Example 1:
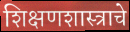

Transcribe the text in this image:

शिक्षणशास्त्राचे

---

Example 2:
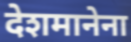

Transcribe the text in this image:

देशमानेना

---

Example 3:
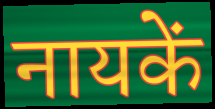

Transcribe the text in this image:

नायकें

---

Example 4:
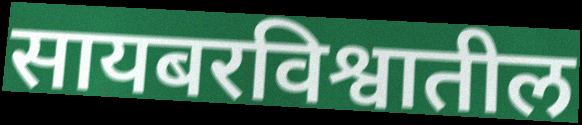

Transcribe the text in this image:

सायबरविश्वातील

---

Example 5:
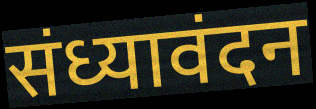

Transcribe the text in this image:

संध्यावंदन